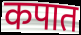
कपात